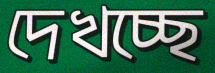
দেখচ্ছে